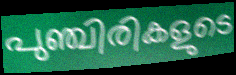
പുഞ്ചിരികളുടെ